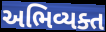
અભિવ્યક્ત